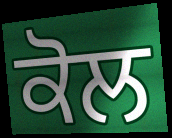
ਕੋਲ